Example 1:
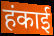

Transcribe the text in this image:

हंकाई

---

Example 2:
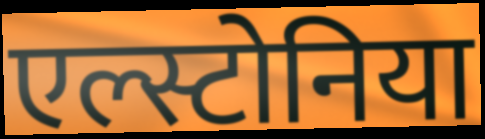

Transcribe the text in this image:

एल्स्टोनिया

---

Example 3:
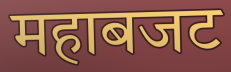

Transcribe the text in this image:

महाबजट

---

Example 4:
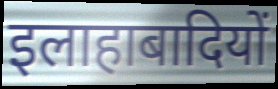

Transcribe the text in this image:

इलाहाबादियों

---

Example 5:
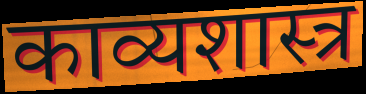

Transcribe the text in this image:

काव्यशास्त्र